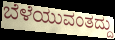
ಬೆಳೆಯುವಂತದ್ದು